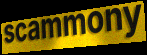
scammony